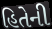
હિતેની